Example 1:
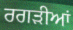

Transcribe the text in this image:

ਰਗੜੀਆਂ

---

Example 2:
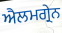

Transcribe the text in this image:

ਐਲਮਗ੍ਰੇਨ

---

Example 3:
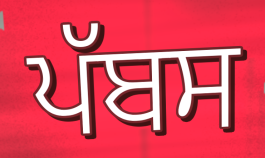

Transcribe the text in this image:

ਪੱਬਸ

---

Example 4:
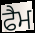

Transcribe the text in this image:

ਫੈਮ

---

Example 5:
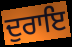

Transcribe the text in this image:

ਦੁਰਾਇ